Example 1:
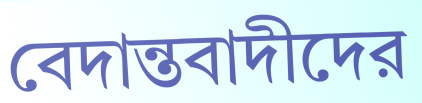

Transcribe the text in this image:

বেদান্তবাদীদের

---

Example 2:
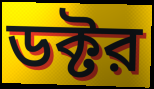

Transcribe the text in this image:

ডক্টর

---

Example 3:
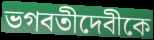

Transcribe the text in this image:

ভগবতীদেবীকে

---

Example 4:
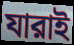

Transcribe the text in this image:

যারাই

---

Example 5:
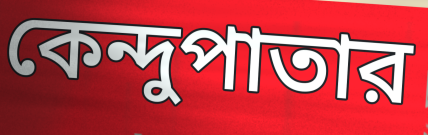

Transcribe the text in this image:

কেন্দুপাতার